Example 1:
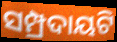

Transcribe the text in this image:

ସମ୍ପ୍ରଦାୟଟି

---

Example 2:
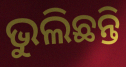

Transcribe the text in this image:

ଭୁଲିଛନ୍ତି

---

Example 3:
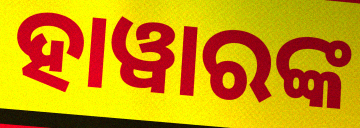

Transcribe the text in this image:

ହାୱାରଙ୍କ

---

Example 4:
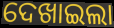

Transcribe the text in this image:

ଦେଖାଇଲା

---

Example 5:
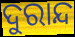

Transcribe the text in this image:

ଦୁରାନ୍ଦ